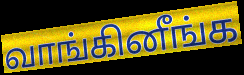
வாங்கினீங்க